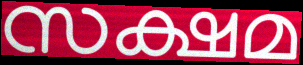
സക്ഷമ